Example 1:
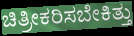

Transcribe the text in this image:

ಚಿತ್ರೀಕರಿಸಬೇಕಿತ್ತು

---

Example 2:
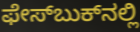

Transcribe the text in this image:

ಫೇಸ್‌ಬುಕ್‌ನಲ್ಲಿ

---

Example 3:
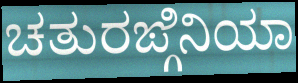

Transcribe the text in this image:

ಚತುರಙ್ಗಿನಿಯಾ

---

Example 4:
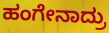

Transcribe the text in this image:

ಹಂಗೇನಾದ್ರು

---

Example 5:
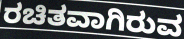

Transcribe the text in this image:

ರಚಿತವಾಗಿರುವ